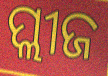
ପ୍ଲୀଜ